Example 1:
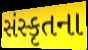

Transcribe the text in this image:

સંસ્‍કૃતના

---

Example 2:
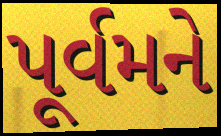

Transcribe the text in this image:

પૂર્વમને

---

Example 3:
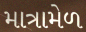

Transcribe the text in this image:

માત્રામેળ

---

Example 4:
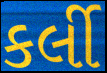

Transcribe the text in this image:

કર્લી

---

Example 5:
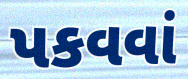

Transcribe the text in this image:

પકવવાં